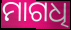
ମାଗଧି